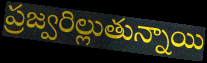
ప్రజ్వరిల్లుతున్నాయి